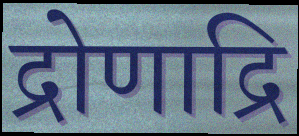
द्रोणाद्रि